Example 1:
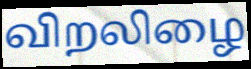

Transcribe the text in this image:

விறலிழை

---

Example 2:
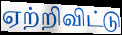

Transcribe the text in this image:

ஏற்றிவிட்டு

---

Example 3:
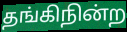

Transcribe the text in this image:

தங்கிநின்ற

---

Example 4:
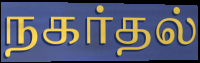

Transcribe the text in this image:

நகர்தல்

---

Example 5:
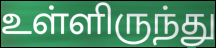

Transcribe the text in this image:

உள்ளிருந்து